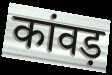
कांवड़